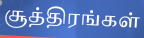
சூத்திரங்கள்